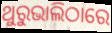
ଥୁରୁଭାଲିଠାରେ